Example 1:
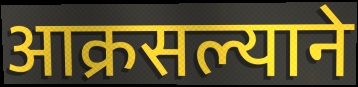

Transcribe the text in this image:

आक्रसल्याने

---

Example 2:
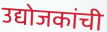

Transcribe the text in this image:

उद्योजकांची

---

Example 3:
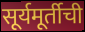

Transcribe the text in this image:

सूर्यमूर्तीची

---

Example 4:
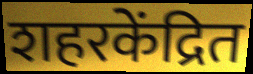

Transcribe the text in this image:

शहरकेंद्रित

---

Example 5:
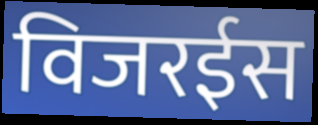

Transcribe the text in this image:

विजरईस